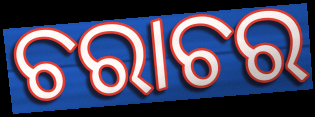
ଚରାଚର